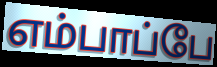
எம்பாப்பே